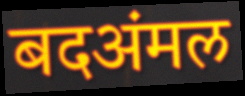
बदअंमल